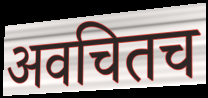
अवचितच